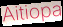
Aitiopa